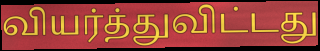
வியர்த்துவிட்டது